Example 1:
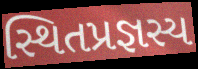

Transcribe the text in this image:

સ્થિતપ્રજ્ઞસ્ય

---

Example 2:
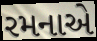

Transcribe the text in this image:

રમનાએ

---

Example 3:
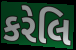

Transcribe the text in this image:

કરેલિ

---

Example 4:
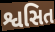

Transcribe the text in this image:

શ્વસિત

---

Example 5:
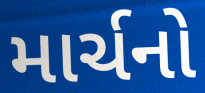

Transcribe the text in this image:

માર્ચનો